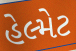
હેલ્મેટ